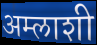
अम्लाशी